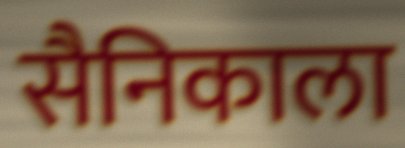
सैनिकाला